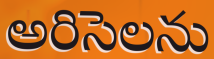
అరిసెలను